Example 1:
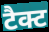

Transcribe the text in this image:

टैक्ट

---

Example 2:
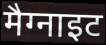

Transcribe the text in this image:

मैग्नाइट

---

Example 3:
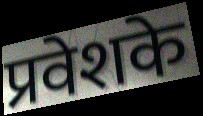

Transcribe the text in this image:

प्रवेशके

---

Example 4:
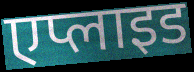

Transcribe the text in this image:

एप्लाइड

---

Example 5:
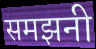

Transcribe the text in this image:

समझनी